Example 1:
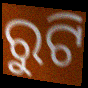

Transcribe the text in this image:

ରୁଟି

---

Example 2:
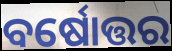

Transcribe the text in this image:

ବର୍ଷୋତ୍ତର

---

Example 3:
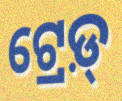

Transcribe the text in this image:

ଟ୍ରେଡ଼୍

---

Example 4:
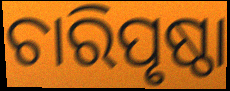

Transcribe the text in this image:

ଚାରିପୃଷ୍ଠା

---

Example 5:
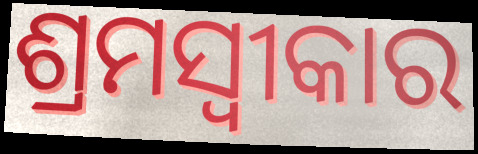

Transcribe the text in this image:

ଶ୍ରମସ୍ୱୀକାର